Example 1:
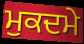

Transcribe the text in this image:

ਮੁਕਦਮੇ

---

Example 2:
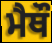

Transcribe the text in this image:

ਮੈਥੌ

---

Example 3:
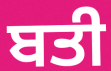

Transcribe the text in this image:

ਬਤੀ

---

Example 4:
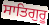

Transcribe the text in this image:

ਸਾਤਿਗੁਰੂ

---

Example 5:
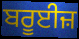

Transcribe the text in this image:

ਬਰੂਈਜ਼